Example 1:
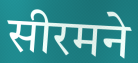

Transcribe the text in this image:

सीरमने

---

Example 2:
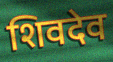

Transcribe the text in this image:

शिवदेव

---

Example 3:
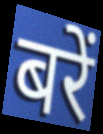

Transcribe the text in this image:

बरें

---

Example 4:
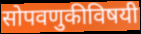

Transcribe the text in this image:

सोपवणुकीविषयी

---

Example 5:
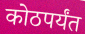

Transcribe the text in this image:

कोठपर्यंत